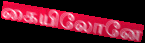
கையிலோனே